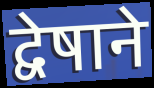
द्वेषाने